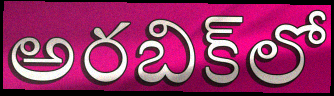
అరబిక్‌లో